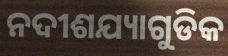
ନଦୀଶଯ୍ୟାଗୁଡିକ